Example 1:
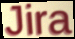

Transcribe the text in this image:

Jira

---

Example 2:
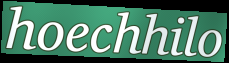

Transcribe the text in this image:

hoechhilo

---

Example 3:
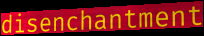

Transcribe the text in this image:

disenchantment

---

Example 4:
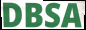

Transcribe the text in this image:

DBSA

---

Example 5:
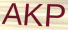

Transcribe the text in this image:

AKP